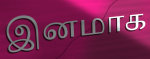
இனமாக